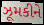
ઝૂમકીને